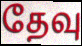
தேவு